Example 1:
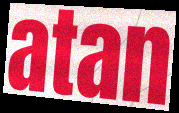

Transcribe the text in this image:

atan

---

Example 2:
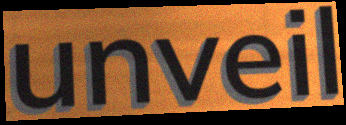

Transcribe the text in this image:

unveil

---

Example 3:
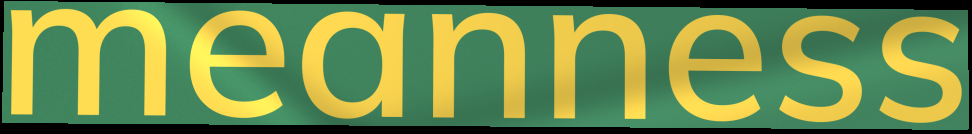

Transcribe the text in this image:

meanness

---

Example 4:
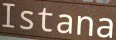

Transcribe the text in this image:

Istana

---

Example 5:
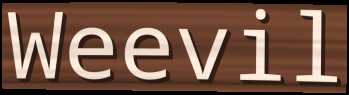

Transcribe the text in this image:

Weevil